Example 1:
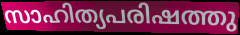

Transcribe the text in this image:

സാഹിത്യപരിഷത്തു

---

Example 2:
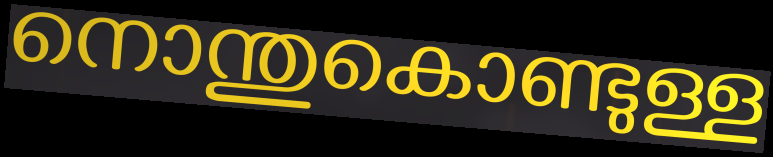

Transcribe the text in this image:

നൊന്തുകൊണ്ടുള്ള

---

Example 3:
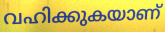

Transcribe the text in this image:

വഹിക്കുകയാണ്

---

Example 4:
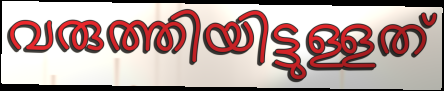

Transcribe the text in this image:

വരുത്തിയിട്ടുള്ളത്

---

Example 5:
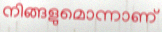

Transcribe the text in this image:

നിങ്ങളുമൊന്നാണ്